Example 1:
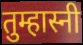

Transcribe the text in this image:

तुम्हास्नी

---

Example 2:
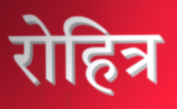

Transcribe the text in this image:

रोहित्र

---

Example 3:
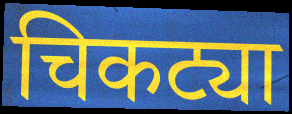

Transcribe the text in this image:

चिकट्या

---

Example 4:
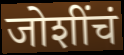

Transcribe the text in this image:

जोशींचं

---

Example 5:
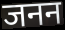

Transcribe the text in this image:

जनन